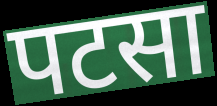
पटसा